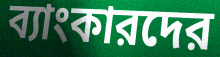
ব্যাংকারদের